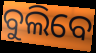
ବୁଲିବେ